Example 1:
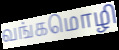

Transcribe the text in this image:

வங்கமொழி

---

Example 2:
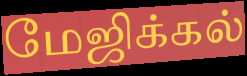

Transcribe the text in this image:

மேஜிக்கல்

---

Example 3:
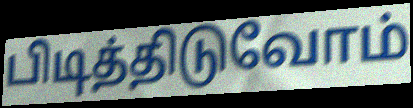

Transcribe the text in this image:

பிடித்திடுவோம்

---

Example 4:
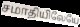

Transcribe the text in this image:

சமாதியிலேயே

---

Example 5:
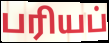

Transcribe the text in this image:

பரியப்